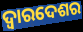
ଦ୍ୱାରଦେଶର